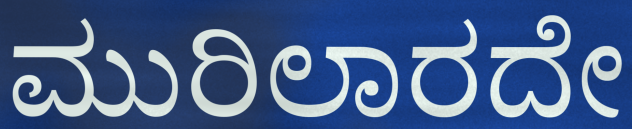
ಮುರಿಲಾರದೇ